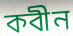
কবীন